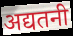
अद्यतनी